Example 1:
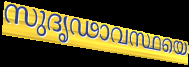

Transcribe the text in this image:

സുദൃഢാവസ്ഥയെ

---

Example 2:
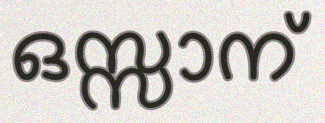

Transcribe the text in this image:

ഒസ്സാന്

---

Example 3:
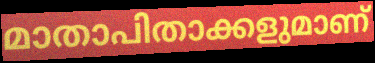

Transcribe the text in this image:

മാതാപിതാക്കളുമാണ്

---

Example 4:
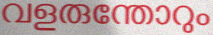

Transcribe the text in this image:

വളരുന്തോറും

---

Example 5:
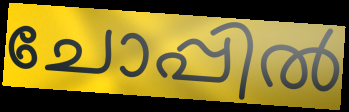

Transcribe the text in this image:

ചോപ്പിൽ